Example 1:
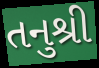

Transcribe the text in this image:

તનુશ્રી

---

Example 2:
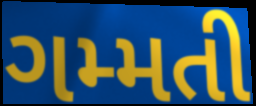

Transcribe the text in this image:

ગમ્મતી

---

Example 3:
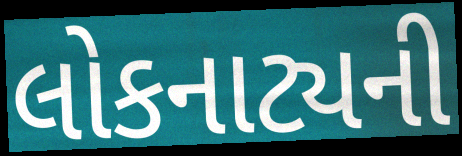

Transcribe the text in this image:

લોકનાટ્યની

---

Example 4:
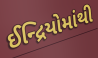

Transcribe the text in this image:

ઈન્દ્રિયોમાંથી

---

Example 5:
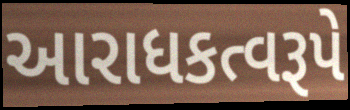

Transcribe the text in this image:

આરાધકત્વરૂપે